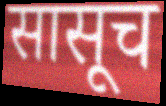
सासूच